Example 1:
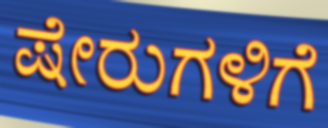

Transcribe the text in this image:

ಷೇರುಗಳಿಗೆ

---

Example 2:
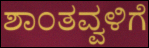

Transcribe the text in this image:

ಶಾಂತವ್ವಳಿಗೆ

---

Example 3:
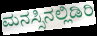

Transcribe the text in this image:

ಮನಸ್ಸಿನಲ್ಲಿಡಿರಿ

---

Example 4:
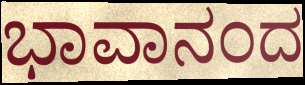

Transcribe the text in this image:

ಭಾವಾನಂದ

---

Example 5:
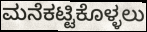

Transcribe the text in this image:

ಮನೆಕಟ್ಟಿಕೊಳ್ಳಲು